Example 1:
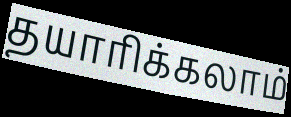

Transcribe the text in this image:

தயாரிக்கலாம்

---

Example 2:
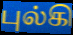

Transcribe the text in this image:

புல்கி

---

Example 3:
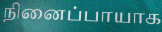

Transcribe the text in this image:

நினைப்பாயாக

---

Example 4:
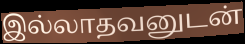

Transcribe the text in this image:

இல்லாதவனுடன்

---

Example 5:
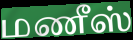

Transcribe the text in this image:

மணீஸ்